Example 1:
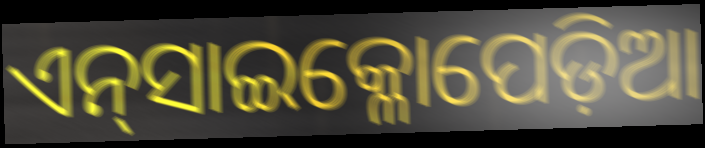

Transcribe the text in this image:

ଏନ୍‌ସାଇକ୍ଳୋପେଡ଼ିଆ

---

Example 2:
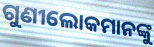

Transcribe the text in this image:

ଗୁଣୀଲୋକମାନଙ୍କୁ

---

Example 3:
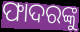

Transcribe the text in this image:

ଫାଦରଙ୍କୁ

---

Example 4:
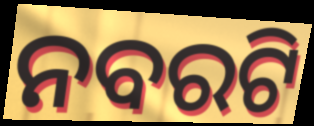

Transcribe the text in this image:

ନବରଟି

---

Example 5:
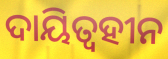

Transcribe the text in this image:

ଦାୟିତ୍ଵହୀନ